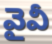
వైవీ